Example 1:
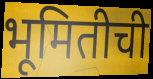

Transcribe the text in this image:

भूमितीची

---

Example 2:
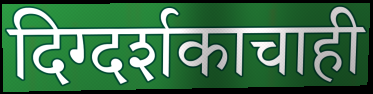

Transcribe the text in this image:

दिग्दर्शकाचाही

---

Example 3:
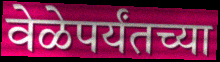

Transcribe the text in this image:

वेळेपर्यंतच्या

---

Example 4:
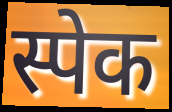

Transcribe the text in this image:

स्पेक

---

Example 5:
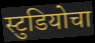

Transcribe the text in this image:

स्टुडियोचा